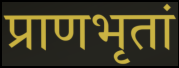
प्राणभृतां